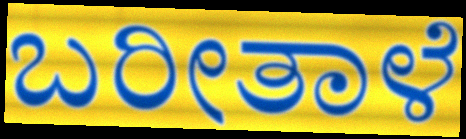
ಬರೀತಾಳೆ